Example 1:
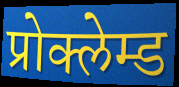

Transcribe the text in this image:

प्रोक्लेम्ड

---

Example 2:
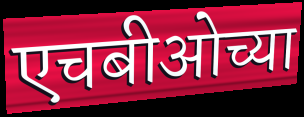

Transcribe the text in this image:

एचबीओच्या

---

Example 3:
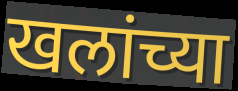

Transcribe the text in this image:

खलांच्या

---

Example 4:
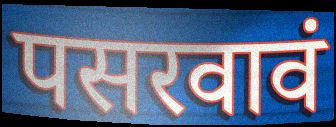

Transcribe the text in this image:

पसरवावं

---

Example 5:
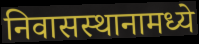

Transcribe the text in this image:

निवासस्थानामध्ये